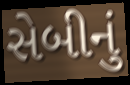
સેબીનું